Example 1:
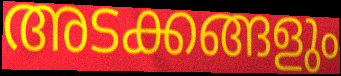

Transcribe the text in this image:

അടക്കങ്ങളും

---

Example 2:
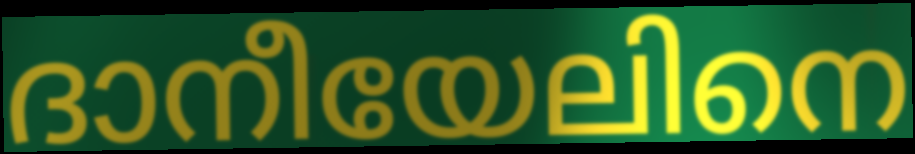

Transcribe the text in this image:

ദാനീയേലിനെ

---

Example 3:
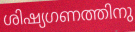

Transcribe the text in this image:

ശിഷ്യഗണത്തിനു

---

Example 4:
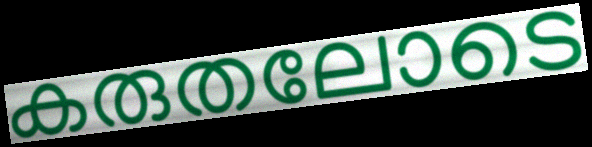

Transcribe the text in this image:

കരുതലോടെ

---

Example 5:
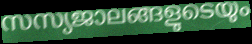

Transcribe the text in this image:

സസ്യജാലങ്ങളുടെയും